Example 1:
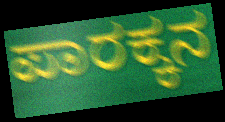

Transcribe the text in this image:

ಪಾರಕ್ಕನ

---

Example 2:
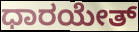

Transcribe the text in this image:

ಧಾರಯೇತ್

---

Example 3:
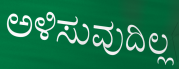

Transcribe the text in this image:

ಅಳಿಸುವುದಿಲ್ಲ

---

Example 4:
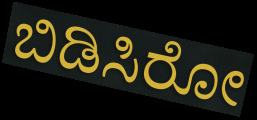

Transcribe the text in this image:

ಬಿಡಿಸಿರೋ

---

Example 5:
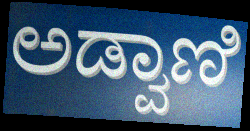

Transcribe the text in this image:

ಅಡ್ವಾಣಿ